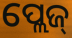
ପ୍ଲେଜ୍